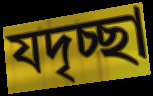
যদৃচ্ছা